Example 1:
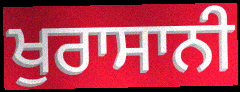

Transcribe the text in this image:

ਖੁਰਾਸਾਨੀ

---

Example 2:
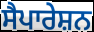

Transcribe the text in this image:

ਸੈਪਾਰੇਸ਼ਨ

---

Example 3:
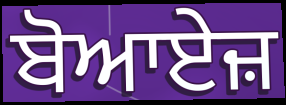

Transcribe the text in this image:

ਬੋਆਏਜ਼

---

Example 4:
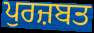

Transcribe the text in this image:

ਪੁਰਜ਼ਬਤ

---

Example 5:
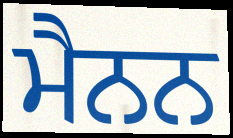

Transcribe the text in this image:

ਮੈਨਨ